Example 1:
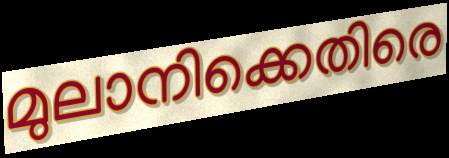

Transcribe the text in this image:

മുലാനിക്കെതിരെ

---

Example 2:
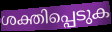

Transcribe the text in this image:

ശക്തിപ്പെടുക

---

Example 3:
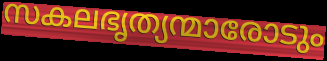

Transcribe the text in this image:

സകലഭൃത്യന്മാരോടും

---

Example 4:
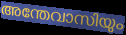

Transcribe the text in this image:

അന്തേവാസിയും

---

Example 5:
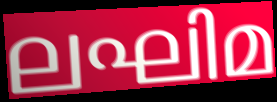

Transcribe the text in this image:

ലഘിമ